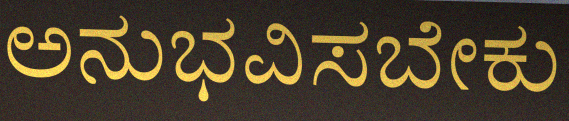
ಅನುಭವಿಸಬೇಕು